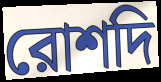
রোশদি